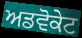
ਅਡਵੋਕੇਟ